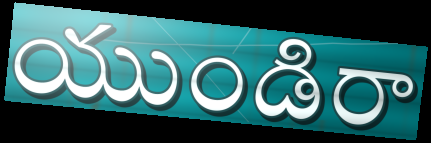
యుండిరా